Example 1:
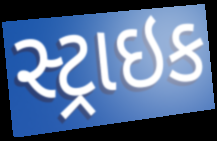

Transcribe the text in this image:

સ્ટ્રાઇક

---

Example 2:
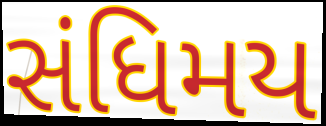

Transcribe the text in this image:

સંધિમય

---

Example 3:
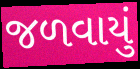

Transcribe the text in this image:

જળવાયું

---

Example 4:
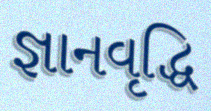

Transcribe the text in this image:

જ્ઞાનવૃદ્ધિ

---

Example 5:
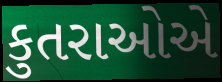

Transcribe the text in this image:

કુતરાઓએ